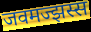
जवमज्झस्स